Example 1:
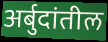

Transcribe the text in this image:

अर्बुदांतील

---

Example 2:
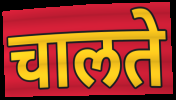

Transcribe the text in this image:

चालते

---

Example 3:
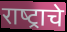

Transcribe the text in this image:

राष्ट्राचे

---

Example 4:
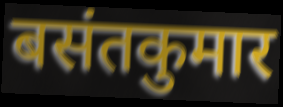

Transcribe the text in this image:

बसंतकुमार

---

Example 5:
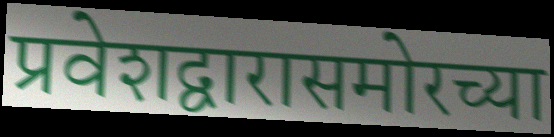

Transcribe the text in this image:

प्रवेशद्वारासमोरच्या